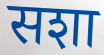
सशा